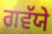
ਗਵੱਯੇ